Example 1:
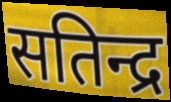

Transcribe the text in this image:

सतिन्द्र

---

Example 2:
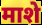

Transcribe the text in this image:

माशे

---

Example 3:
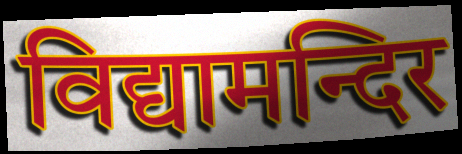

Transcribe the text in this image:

विद्यामन्दिर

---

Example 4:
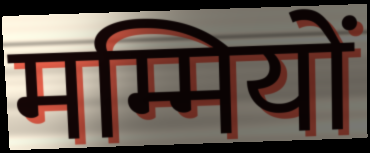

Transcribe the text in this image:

मम्मियों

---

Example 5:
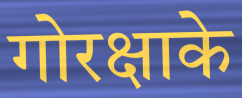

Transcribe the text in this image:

गोरक्षाके